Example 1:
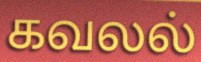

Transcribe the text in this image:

கவலல்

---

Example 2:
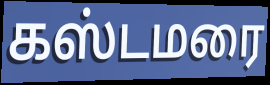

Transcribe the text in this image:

கஸ்டமரை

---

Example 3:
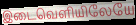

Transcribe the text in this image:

இடைவெளியிலேயே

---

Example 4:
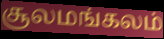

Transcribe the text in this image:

சூலமங்கலம்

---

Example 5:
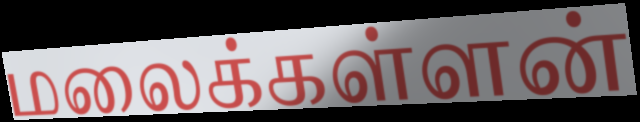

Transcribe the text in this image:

மலைக்கள்ளன்